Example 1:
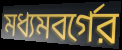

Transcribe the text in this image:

মধ্যমবর্গের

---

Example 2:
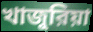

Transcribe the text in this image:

খাজুরিয়া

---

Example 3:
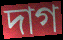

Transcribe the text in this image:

দাগ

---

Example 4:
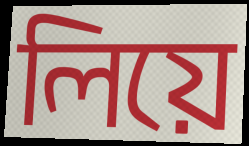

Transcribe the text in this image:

লিয়ে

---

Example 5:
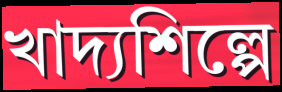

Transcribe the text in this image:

খাদ্যশিল্পে